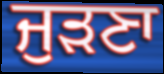
ਜੁੜਣਾ